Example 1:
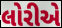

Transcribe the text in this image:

લોરીએ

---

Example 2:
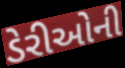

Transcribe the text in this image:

ડેરીઓની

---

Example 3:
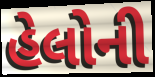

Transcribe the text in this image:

હેલોની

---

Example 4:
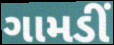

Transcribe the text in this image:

ગામડીં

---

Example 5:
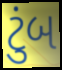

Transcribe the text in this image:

ટુંબ